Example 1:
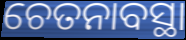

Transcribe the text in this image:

ଚେତନାବସ୍ଥା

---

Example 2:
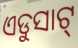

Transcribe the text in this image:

ଏଡୁସାଟ୍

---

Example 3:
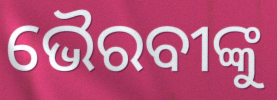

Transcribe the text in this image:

ଭୈରବୀଙ୍କୁ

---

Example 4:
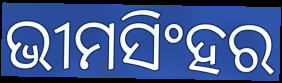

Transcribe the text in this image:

ଭୀମସିଂହର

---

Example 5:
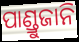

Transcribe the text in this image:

ପାଣ୍ଡ୍ରୁଜାନି